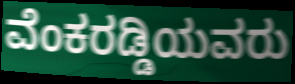
ವೆಂಕರಡ್ಡಿಯವರು